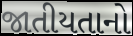
જાતીયતાનો